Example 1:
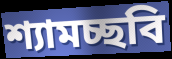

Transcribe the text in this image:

শ্যামচ্ছবি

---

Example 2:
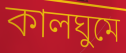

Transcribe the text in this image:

কালঘুমে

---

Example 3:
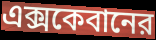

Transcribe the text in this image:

এক্সকেবানের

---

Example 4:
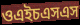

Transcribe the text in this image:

ওএইচএসএস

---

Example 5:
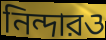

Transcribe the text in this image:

নিন্দারও